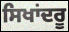
ਸਿਖਾਂਦਰੂ